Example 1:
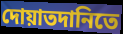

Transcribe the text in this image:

দোয়াতদানিতে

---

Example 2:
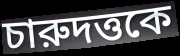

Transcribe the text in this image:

চারুদত্তকে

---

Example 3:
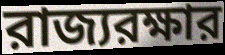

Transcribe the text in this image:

রাজ্যরক্ষার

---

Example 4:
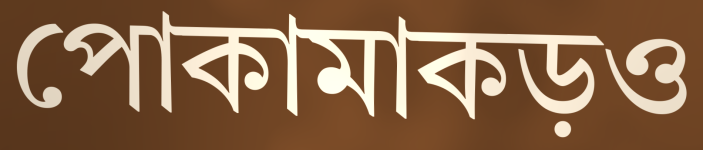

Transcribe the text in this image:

পোকামাকড়ও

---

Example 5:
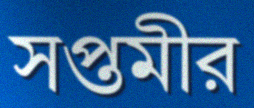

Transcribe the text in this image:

সপ্তমীর